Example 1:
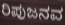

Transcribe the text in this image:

ರಿಪುಜನವ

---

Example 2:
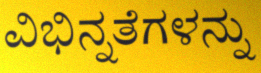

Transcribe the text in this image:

ವಿಭಿನ್ನತೆಗಳನ್ನು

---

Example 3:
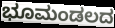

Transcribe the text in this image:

ಭೂಮಂಡಲದ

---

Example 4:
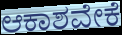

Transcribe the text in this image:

ಆಕಾಶವೇಕೆ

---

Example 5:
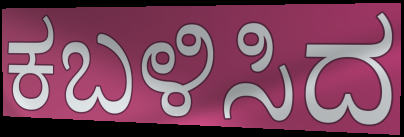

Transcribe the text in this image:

ಕಬಳಿಸಿದ